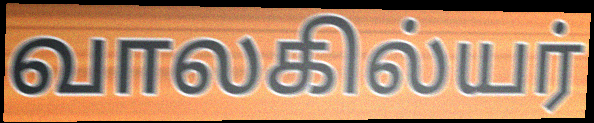
வாலகில்யர்